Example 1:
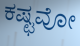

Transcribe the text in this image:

ಕಷ್ಟವೋ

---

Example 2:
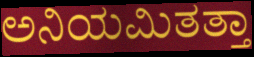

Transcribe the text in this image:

ಅನಿಯಮಿತತ್ತಾ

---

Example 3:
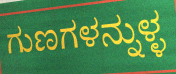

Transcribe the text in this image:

ಗುಣಗಳನ್ನುಳ್ಳ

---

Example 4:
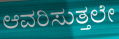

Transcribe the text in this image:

ಆವರಿಸುತ್ತಲೇ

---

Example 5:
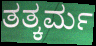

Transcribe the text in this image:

ತತ್ಕರ್ಮ